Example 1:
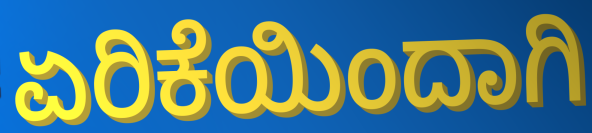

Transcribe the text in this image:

ಏರಿಕೆಯಿಂದಾಗಿ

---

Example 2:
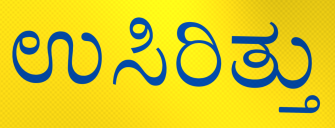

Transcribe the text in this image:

ಉಸಿರಿತ್ತು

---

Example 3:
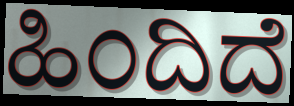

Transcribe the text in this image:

ಹಿಂದಿದೆ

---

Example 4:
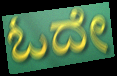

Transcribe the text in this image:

ಓದೇ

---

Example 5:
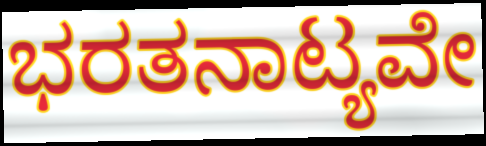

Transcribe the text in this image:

ಭರತನಾಟ್ಯವೇ